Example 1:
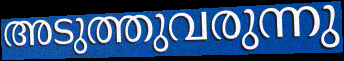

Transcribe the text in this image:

അടുത്തുവരുന്നു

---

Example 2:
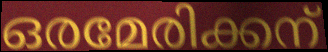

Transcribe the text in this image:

ഒരമേരിക്കന്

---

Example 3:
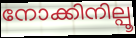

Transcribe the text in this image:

നോക്കിനില്പൂ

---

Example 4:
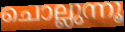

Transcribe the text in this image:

ചൊല്ലുന്നൂ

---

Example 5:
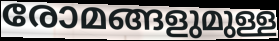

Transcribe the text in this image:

രോമങ്ങളുമുള്ള